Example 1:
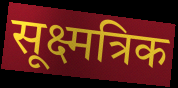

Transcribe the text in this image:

सूक्ष्मत्रिक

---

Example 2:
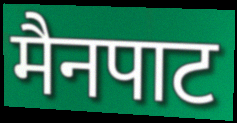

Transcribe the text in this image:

मैनपाट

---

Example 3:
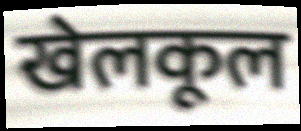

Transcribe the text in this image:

खेलकूल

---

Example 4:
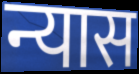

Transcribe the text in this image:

न्‍यास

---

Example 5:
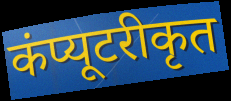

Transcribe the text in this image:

कंप्यूटरीकृत